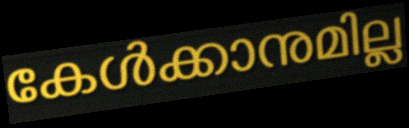
കേൾക്കാനുമില്ല